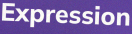
Expression